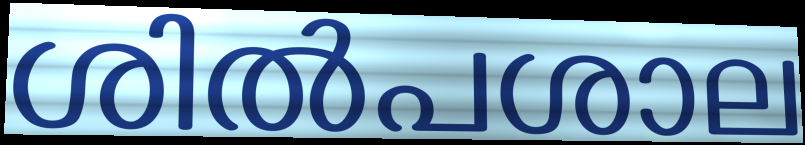
ശിൽപശാല